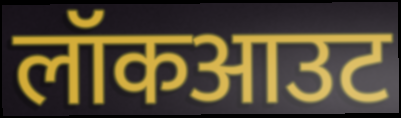
लॉकआउट